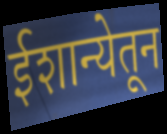
ईशान्येतून